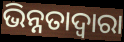
ଭିନ୍ନତାଦ୍ୱାରା